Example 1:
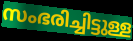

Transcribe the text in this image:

സംഭരിച്ചിട്ടുള്ള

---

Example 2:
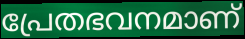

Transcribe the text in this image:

പ്രേതഭവനമാണ്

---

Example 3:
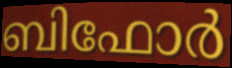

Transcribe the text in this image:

ബിഫോർ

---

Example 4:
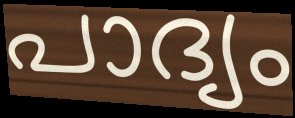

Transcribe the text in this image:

പാദ്യം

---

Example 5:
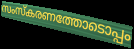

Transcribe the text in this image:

സംസ്കരണത്തോടൊപ്പം